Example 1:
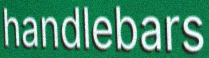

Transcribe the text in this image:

handlebars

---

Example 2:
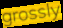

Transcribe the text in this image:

grossly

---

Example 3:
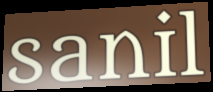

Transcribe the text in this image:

sanil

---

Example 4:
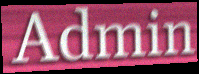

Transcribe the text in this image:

Admin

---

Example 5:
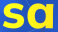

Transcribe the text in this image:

sa